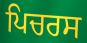
ਪਿਚਰਸ